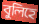
বুলিহে